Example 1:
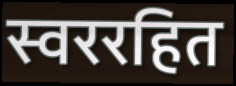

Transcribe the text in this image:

स्वररहित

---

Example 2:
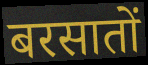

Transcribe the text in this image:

बरसातों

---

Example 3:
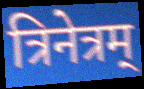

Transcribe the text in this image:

त्रिनेत्रम्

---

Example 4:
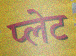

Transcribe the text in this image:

प्लेट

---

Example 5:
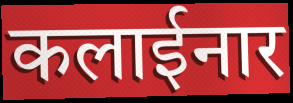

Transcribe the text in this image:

कलाईनार